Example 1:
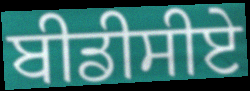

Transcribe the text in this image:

ਬੀਡੀਸੀਏ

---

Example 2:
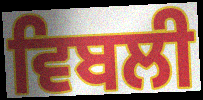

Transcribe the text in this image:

ਵਿਬਲੀ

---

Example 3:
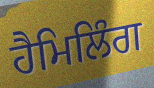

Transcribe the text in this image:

ਹੈਮਿਲਿੰਗ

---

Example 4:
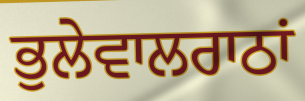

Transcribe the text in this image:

ਭੁਲੇਵਾਲਰਾਠਾਂ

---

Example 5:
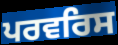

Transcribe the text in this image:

ਪਰਵਰਿਸ